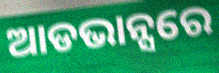
ଆଡଭାନ୍ସରେ